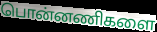
பொன்னணிகளை